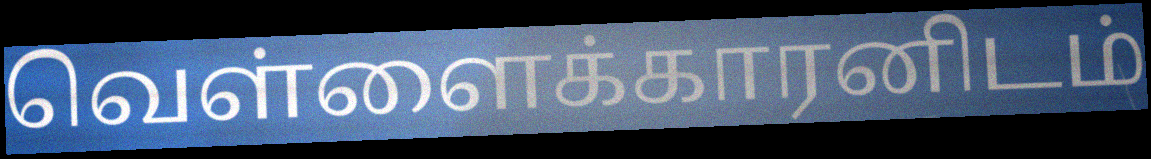
வெள்ளைக்காரனிடம்